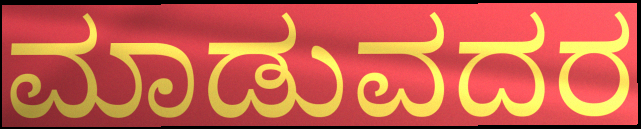
ಮಾಡುವದರ